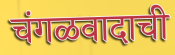
चंगळवादाची